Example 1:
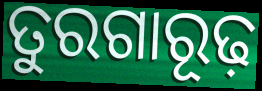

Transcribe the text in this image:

ତୁରଗାରୂଢ଼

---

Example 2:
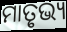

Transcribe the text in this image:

ମାତୃଭ୍ୟ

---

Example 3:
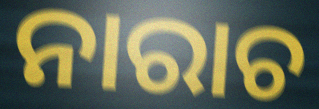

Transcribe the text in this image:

ନାରାଚ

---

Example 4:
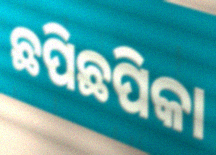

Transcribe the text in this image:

ଛପିଛପିକା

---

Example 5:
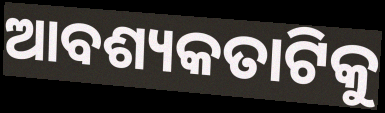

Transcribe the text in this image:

ଆବଶ୍ୟକତାଟିକୁ